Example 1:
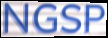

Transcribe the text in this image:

NGSP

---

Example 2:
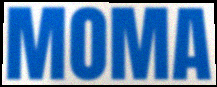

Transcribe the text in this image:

MOMA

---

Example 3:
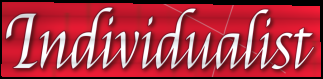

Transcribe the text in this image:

Individualist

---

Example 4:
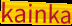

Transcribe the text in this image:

kainka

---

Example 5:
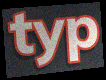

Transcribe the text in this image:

typ